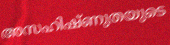
അസഹിഷ്ണുതയുടെ